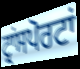
ਟ੍ਰਾਂਸਪੋਰਟਾਂ